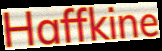
Haffkine